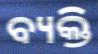
ବ୍ୟକ୍ତି